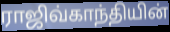
ராஜிவ்காந்தியின்